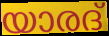
യാരദ്